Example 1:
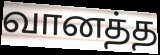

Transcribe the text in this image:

வானத்த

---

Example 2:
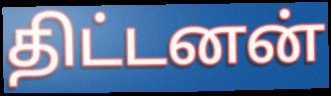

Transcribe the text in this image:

திட்டனன்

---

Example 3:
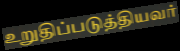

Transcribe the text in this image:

உறுதிப்படுத்தியவர்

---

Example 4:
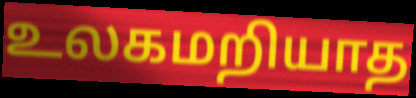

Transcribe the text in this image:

உலகமறியாத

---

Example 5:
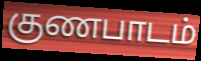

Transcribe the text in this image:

குணபாடம்